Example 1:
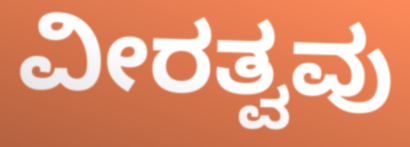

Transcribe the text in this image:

ವೀರತ್ವವು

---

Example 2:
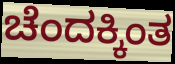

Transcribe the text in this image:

ಚೆಂದಕ್ಕಿಂತ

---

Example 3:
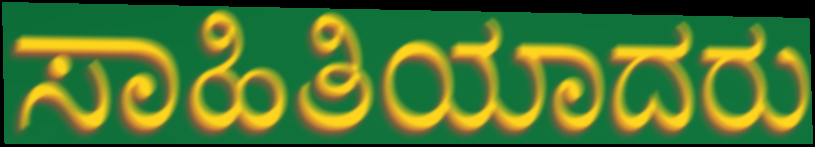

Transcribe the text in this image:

ಸಾಹಿತಿಯಾದರು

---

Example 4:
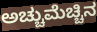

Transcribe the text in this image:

ಅಚ್ಚುಮೆಚ್ಚಿನ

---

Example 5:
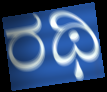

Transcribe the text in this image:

ರಥಿ